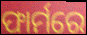
ଫାର୍ମରେ